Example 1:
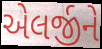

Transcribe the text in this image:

એલર્જીને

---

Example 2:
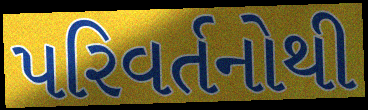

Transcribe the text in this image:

પરિવર્તનોથી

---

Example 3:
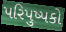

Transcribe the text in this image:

પરિપુષ્પકો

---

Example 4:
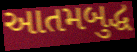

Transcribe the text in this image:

આતમબુદ્ધ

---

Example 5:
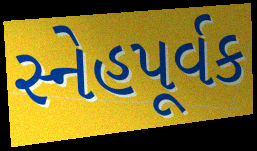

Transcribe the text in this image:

સ્નેહપૂર્વક